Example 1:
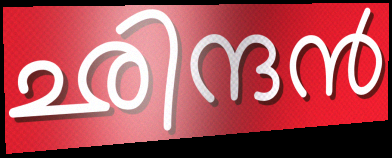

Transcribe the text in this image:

ഛിന്ദൻ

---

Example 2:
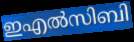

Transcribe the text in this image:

ഇഎൽസിബി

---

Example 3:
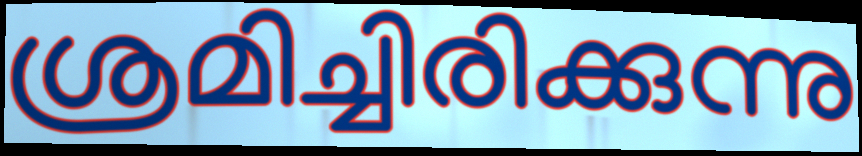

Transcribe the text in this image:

ശ്രമിച്ചിരിക്കുന്നു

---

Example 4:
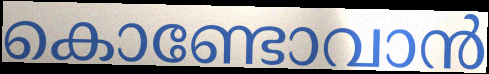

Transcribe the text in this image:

കൊണ്ടോവാൻ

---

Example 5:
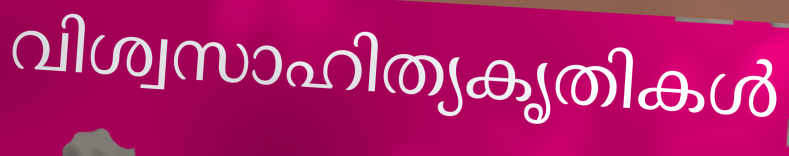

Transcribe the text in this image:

വിശ്വസാഹിത്യകൃതികൾ